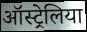
ऑस्ट्रेलिया